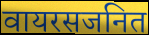
वायरसजनित